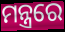
ମନ୍ତ୍ରରେ